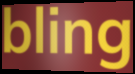
bling